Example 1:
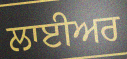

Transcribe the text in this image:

ਲਾਈਅਰ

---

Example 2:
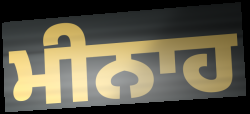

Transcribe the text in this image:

ਮੀਨਾਹ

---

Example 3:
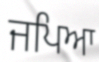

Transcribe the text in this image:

ਜਪਿਆ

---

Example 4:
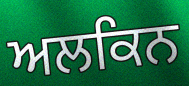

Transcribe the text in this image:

ਅਲਕਿਨ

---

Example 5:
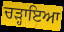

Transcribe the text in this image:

ਚੜ੍ਹਾਇਆ